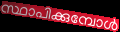
സ്ഥാപിക്കുമ്പോൾ